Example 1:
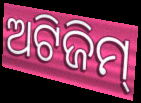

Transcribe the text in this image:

ଅଟିଜିମ୍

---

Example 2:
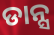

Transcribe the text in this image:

ଡାନ୍ସ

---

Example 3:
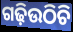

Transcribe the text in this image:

ଗଢ଼ିଉଠିଚି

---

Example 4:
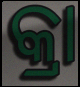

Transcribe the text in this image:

କ୍ରା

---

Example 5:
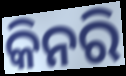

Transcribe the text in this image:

କିନରି